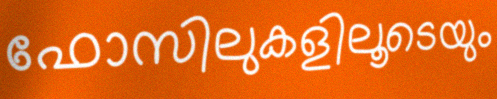
ഫോസിലുകളിലൂടെയും